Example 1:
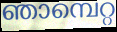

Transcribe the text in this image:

ഞാമ്പെറ്റ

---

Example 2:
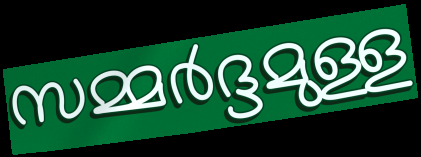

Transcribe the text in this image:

സമ്മർദ്ദമുള്ള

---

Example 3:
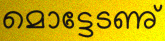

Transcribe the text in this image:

മൊട്ടേടണു്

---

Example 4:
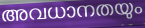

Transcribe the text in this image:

അവധാനതയും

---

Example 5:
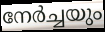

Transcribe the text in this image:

നേർച്ചയും